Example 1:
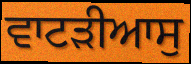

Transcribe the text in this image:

ਵਾਟੜੀਆਸੁ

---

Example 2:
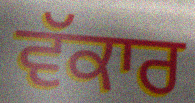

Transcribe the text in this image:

ਵੱਕਾਰ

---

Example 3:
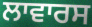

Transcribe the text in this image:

ਲਾਵਾਰਸ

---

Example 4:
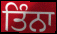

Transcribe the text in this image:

ਤਿੰਨਾ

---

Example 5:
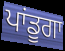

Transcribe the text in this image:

ਪਾਂਡੂਗਾ